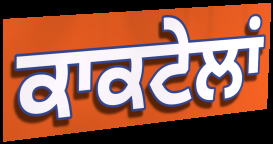
ਕਾਕਟੇਲਾਂ